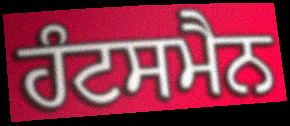
ਹੰਟਸਮੈਨ